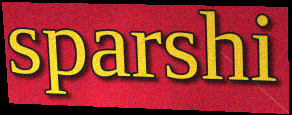
sparshi